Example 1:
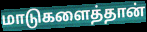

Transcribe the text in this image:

மாடுகளைத்தான்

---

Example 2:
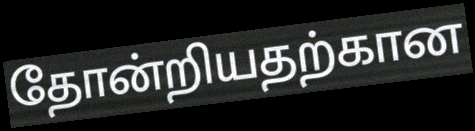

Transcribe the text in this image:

தோன்றியதற்கான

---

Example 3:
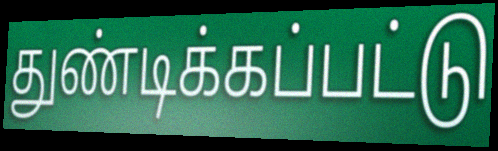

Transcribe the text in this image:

துண்டிக்கப்பட்டு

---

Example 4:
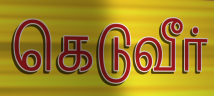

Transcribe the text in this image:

கெடுவீர்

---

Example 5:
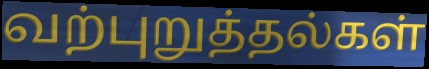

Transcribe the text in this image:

வற்புறுத்தல்கள்